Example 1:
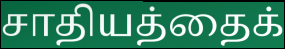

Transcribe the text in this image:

சாதியத்தைக்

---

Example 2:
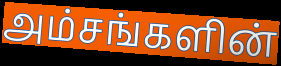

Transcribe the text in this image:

அம்சங்களின்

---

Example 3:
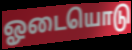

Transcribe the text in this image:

ஓடையொடு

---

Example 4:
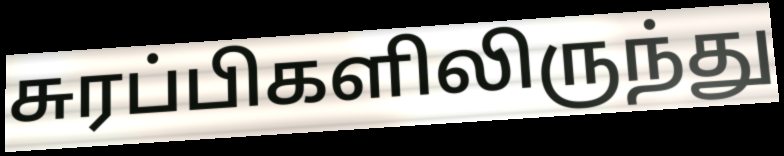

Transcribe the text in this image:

சுரப்பிகளிலிருந்து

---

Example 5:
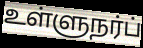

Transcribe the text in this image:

உள்ளுநர்ப்